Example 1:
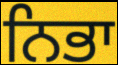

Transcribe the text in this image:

ਨਿਭਾ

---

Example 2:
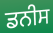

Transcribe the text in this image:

ਡਨੀਸ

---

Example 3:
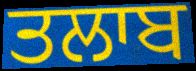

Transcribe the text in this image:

ਤਲਾਬ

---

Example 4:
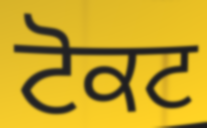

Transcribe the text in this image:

ਟੋਕਟ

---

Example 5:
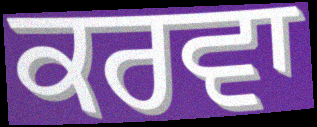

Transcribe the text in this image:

ਕਰਵਾ